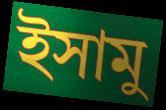
ইসামু